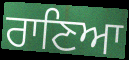
ਰਾਣਿਆ